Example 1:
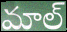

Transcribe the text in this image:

మాల్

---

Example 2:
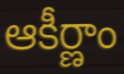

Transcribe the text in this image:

ఆకీర్ణాం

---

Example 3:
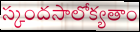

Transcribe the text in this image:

స్కందసాలోక్యతాం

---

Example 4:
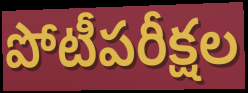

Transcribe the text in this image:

పోటీపరీక్షల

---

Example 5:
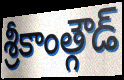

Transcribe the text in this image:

శ్రీకాంత్గౌడ్